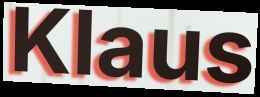
Klaus